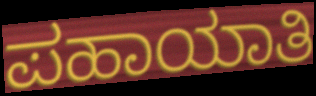
ಪಹಾಯಾತಿ